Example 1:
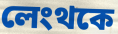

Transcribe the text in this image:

লেংথকে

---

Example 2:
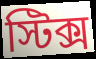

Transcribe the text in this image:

স্টিক্স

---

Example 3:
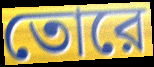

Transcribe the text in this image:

তোরে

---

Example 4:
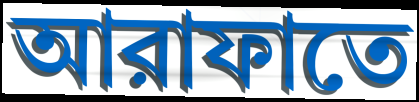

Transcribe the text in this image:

আরাফাতে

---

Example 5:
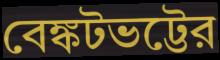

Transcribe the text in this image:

বেঙ্কটভট্টের